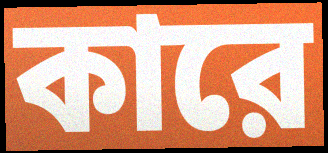
কারে